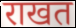
राखत